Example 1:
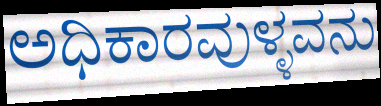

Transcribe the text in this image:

ಅಧಿಕಾರವುಳ್ಳವನು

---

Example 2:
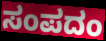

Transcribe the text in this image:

ಸಂಪದಂ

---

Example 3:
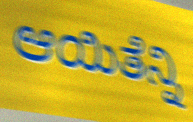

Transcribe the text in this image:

ಆಯಿತೆನ್ನಿ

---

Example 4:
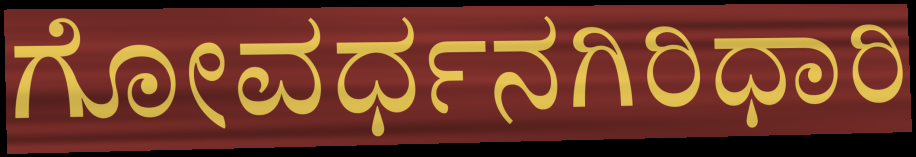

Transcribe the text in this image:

ಗೋವರ್ಧನಗಿರಿಧಾರಿ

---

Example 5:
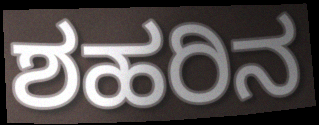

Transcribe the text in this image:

ಶಹರಿನ